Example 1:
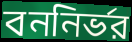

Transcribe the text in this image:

বননির্ভর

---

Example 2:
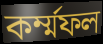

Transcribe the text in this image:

কর্ম্মফল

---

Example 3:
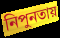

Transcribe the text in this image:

নিপুনতায়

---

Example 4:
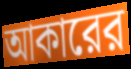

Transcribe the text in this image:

আকারের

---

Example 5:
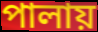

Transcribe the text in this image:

পালায়